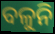
ବଳୁନି